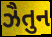
ઝૈતુન